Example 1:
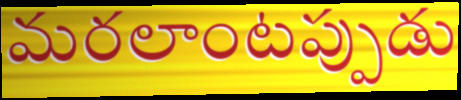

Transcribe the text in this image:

మరలాంటప్పుడు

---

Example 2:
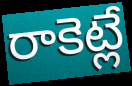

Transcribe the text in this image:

రాకెట్లే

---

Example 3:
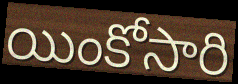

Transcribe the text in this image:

యింకోసారి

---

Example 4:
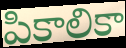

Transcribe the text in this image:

పికాలికా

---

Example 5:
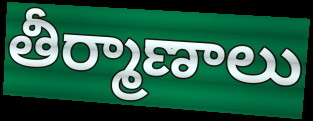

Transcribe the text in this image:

తీర్మాణాలు